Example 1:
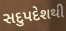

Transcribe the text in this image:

સદુપદેશથી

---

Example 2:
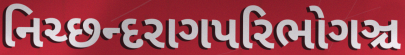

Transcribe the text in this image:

નિચ્છન્દરાગપરિભોગઞ્ચ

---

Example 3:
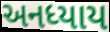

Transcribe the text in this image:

અનધ્યાય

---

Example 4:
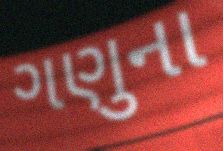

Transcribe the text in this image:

ગણુના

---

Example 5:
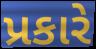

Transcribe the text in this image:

પ્રકારે